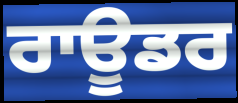
ਰਾਊਡਰ